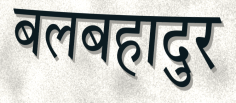
बलबहादुर